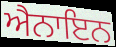
ਐਨਾਇਨ